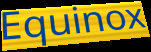
Equinox